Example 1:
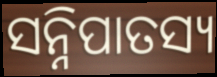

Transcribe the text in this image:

ସନ୍ନିପାତସ୍ୟ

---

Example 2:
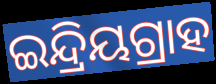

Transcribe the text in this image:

ଇନ୍ଦ୍ରିୟଗ୍ରାହ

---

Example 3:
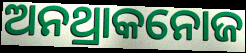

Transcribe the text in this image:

ଅନଥ୍ରାକନୋଜ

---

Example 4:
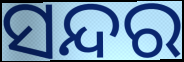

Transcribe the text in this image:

ସନ୍ଦର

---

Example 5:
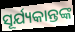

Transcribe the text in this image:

ସୂର୍ଯ୍ୟକାନ୍ତଙ୍କ